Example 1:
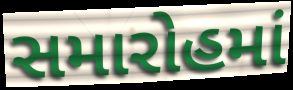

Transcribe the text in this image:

સમારોહમાં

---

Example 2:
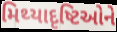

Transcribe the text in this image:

મિથ્યાદૃષ્ટિઓને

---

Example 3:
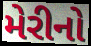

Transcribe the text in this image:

મેરીનો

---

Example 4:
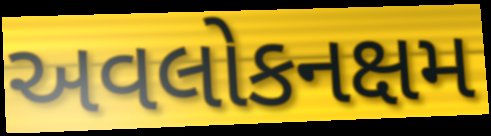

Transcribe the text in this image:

અવલોકનક્ષમ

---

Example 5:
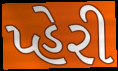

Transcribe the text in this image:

પ્હેરી